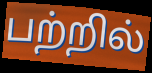
பற்றில்